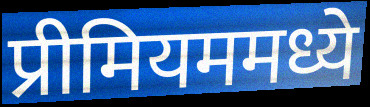
प्रीमियममध्ये